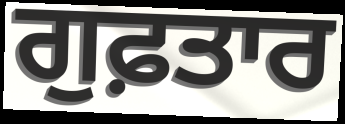
ਗੁਫ਼ਤਾਰ